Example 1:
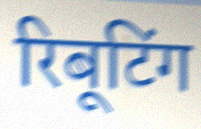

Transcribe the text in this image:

रिबूटिंग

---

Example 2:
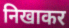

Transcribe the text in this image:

निखाकर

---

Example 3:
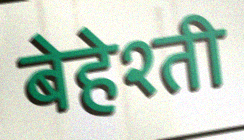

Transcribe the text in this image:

बेहेश्ती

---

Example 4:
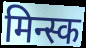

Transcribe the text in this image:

मिन्स्क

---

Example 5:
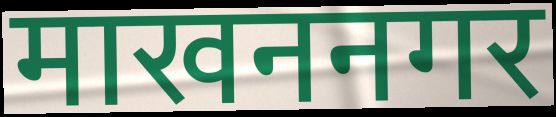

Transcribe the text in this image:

माखननगर